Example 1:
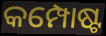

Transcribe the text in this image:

କମ୍ପୋଷ୍ଟ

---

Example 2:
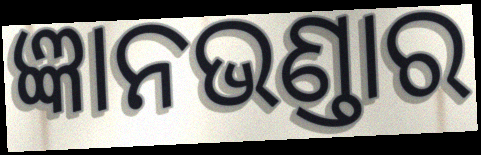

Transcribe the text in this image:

ଜ୍ଞାନଭଣ୍ଡାର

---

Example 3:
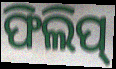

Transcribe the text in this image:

ଫିଲିପ୍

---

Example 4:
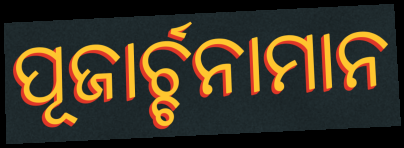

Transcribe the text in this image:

ପୂଜାର୍ଚ୍ଚନାମାନ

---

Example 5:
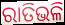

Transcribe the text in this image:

ରାତିଭଳି